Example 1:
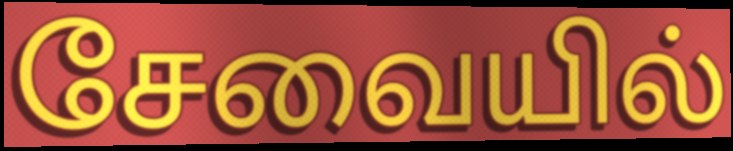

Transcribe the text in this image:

சேவையில்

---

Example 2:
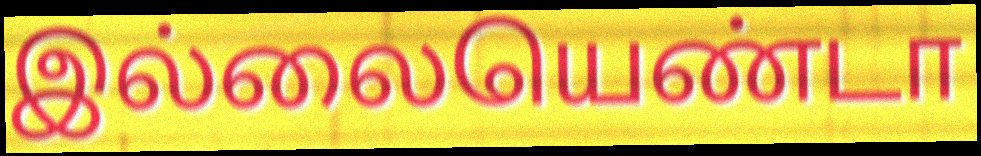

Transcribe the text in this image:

இல்லையெண்டா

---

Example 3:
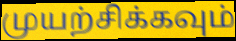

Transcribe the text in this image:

முயற்சிக்கவும்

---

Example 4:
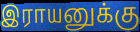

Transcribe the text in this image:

இராயனுக்கு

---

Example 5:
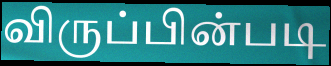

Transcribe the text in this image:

விருப்பின்படி